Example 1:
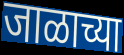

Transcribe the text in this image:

जाळाच्या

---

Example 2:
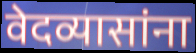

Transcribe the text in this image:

वेदव्यासांना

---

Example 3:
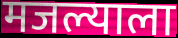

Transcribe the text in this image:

मजल्याला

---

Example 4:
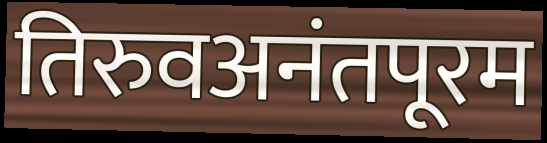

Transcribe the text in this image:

तिरुवअनंतपूरम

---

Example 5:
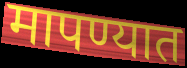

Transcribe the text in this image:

मापण्यात